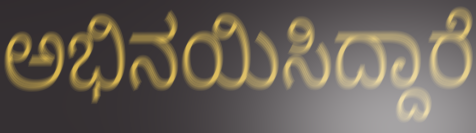
ಅಭಿನಯಿಸಿದ್ದಾರೆ